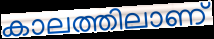
കാലത്തിലാണ്